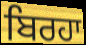
ਬਿਰਹਾ